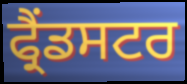
ਫ੍ਰੈਂਡਸਟਰ